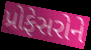
પ્રોફેસરોને